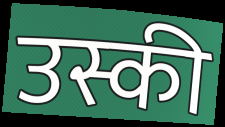
उस्‍की